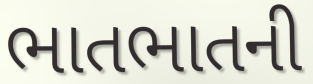
ભાતભાતની